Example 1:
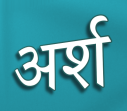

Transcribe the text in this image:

अर्श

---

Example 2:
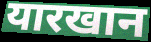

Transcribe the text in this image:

यारखान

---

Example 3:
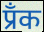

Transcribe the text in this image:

प्रँक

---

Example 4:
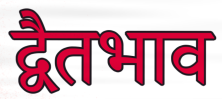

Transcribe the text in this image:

द्वैतभाव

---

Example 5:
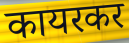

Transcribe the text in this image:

कायरकर